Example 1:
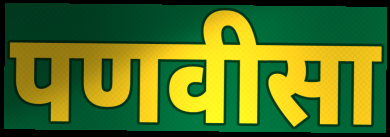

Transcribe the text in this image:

पणवीसा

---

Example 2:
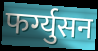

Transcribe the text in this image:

फर्ग्युसन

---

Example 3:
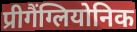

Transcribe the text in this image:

प्रीगैंग्लियोनिक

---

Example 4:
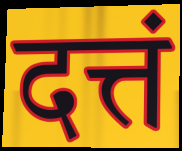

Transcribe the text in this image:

दत्तं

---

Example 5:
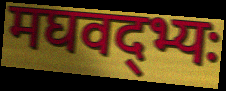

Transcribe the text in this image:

मघवद्भ्यः